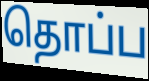
தொப்ப